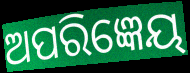
ଅପରିଜ୍ଞେୟ